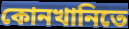
কোনখানিতে